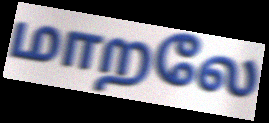
மாறலே